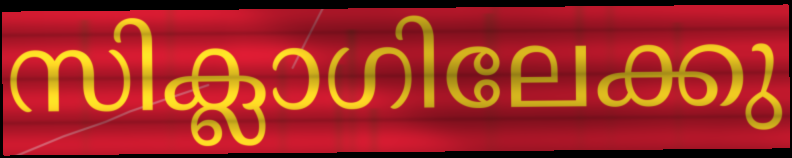
സിക്ലാഗിലേക്കു